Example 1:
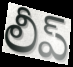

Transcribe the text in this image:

లీప్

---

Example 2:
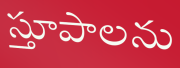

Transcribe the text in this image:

స్తూపాలను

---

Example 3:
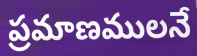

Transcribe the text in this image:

ప్రమాణములనే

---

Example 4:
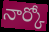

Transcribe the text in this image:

నార్కో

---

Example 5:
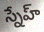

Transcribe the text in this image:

స్నేహ్